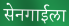
सेनगाईला